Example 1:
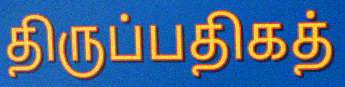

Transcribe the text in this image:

திருப்பதிகத்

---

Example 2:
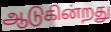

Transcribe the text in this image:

ஆடுகின்றது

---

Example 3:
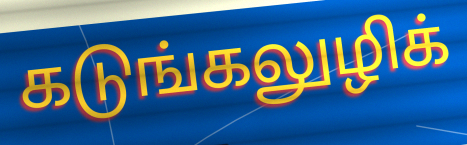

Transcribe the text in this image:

கடுங்கலுழிக்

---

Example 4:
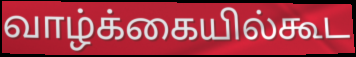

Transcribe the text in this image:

வாழ்க்கையில்கூட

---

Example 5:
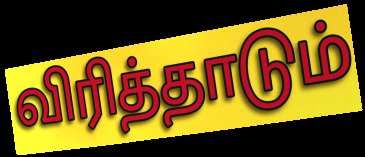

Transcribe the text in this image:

விரித்தாடும்